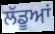
ਲੱਡੂਆਂ